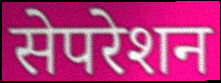
सेपरेशन